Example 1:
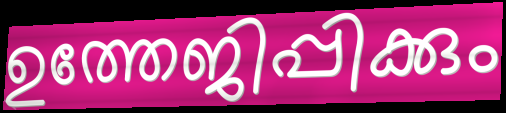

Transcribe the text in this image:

ഉത്തേജിപ്പിക്കും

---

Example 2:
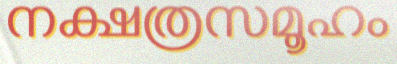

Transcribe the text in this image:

നക്ഷത്രസമൂഹം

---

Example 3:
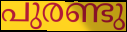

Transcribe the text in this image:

പുരണ്ടു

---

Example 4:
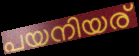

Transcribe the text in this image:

പയനിയര്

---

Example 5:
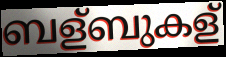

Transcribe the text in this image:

ബള്ബുകള്